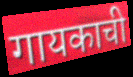
गायकाची